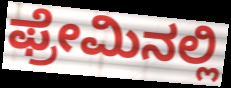
ಫ್ರೇಮಿನಲ್ಲಿ